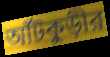
আঁটকুড়ীর